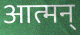
आत्मन्